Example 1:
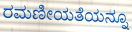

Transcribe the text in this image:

ರಮಣೀಯತೆಯನ್ನೂ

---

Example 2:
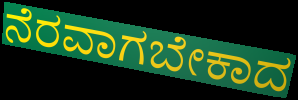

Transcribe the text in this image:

ನೆರವಾಗಬೇಕಾದ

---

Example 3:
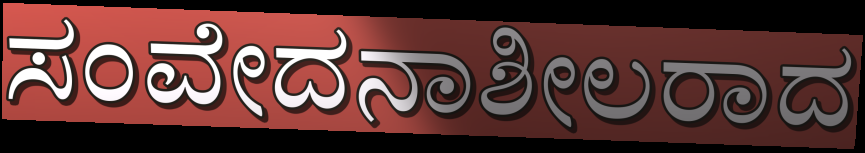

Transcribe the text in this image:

ಸಂವೇದನಾಶೀಲರಾದ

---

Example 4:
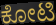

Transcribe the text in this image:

ಕೋಟಿ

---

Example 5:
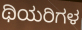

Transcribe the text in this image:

ಥಿಯರಿಗಳ